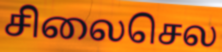
சிலைசெல